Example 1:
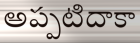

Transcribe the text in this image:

అప్పటిదాకా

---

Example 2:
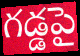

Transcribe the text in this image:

గడ్డపై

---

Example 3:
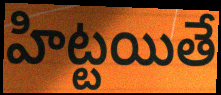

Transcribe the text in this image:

హిట్టయితే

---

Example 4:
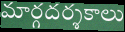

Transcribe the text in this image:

మార్గదర్శకాలు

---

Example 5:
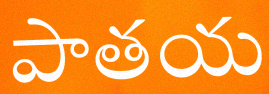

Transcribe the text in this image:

పాతయ